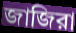
জাজিরা